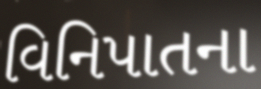
વિનિપાતના